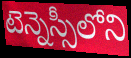
టెన్నెస్సీలోని